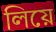
লিয়ে